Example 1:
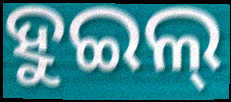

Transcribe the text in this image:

ହୁଇଲ୍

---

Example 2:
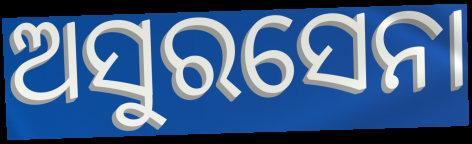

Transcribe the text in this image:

ଅସୁରସେନା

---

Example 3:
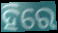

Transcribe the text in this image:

ହିରେ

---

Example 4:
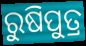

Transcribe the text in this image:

ରୁଷିପୁତ୍ର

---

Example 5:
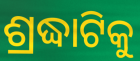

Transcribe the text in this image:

ଶ୍ରଦ୍ଧାଟିକୁ